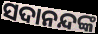
ସଦାନନ୍ଦଙ୍କ